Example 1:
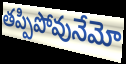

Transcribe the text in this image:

తప్పిపోవునేమో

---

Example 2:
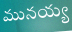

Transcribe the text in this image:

మునయ్య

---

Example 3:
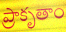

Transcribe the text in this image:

ప్రాకృతాం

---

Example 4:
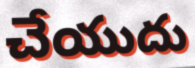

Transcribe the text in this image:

చేయుదు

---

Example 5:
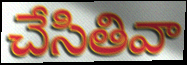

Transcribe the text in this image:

చేసితివా